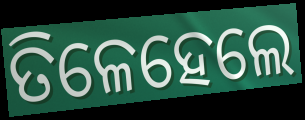
ତିଳେହେଲେ